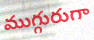
ముగ్గురుగా